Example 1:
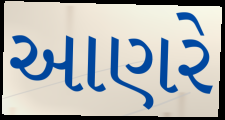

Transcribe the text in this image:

આણરે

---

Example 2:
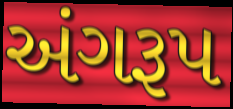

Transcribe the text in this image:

અંગરૂપ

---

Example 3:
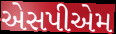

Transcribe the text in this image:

એસપીએમ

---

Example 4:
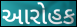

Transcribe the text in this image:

આરોહક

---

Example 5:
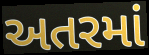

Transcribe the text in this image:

અતરમાં